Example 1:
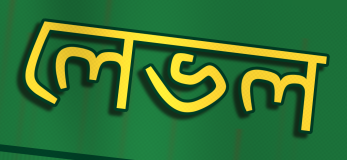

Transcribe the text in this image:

লেভল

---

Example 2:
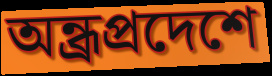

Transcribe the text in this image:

অন্ধ্রপ্রদেশে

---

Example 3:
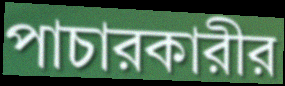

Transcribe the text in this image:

পাচারকারীর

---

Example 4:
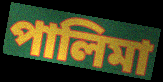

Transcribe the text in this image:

পালিমা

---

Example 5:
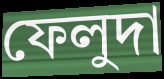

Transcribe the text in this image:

ফেলুদা